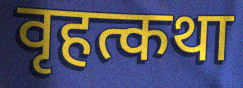
वृहत्कथा